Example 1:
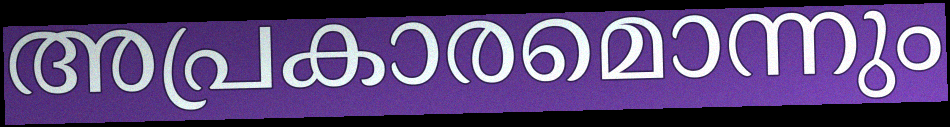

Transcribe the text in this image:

അപ്രകാരമൊന്നും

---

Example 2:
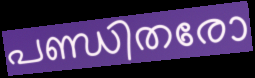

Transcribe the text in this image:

പണ്ഡിതരോ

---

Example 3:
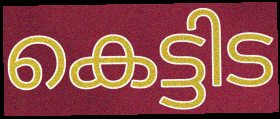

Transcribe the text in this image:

കെട്ടിട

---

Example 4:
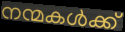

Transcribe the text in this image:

നന്മകൾക്ക്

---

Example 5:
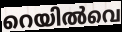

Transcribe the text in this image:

റെയിൽവെ